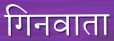
गिनवाता